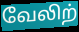
வேலிற்